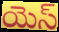
యెస్